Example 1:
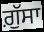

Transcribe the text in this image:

ਗ਼ੁੱਸਾ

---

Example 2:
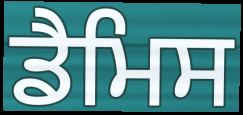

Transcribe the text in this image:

ਡੈਮਿਸ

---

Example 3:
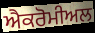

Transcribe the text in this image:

ਐਕਰੋਮੀਅਲ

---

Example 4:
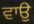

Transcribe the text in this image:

ਵਾਉ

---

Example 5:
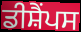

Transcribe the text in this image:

ਡੀਸ਼ੈਂਪਸ